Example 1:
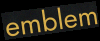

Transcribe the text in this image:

emblem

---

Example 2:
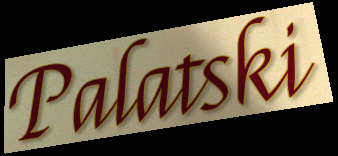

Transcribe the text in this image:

Palatski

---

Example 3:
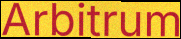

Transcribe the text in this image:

Arbitrum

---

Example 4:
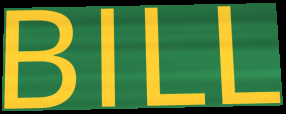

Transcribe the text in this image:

BILL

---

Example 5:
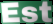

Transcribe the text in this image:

Est